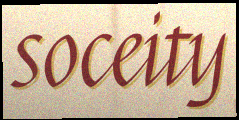
soceity